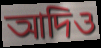
আদিও